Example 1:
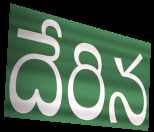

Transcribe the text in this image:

దేరిన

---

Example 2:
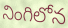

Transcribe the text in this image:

నింగిలోన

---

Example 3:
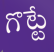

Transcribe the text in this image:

గొట్టే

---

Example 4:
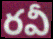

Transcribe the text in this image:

రవీ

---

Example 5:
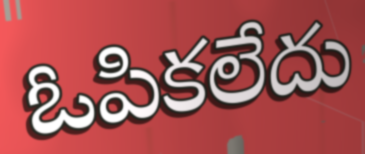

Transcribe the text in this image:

ఓపికలేదు